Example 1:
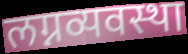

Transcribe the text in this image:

लग्नव्यवस्था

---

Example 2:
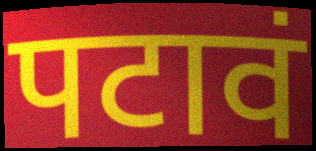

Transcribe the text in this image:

पटावं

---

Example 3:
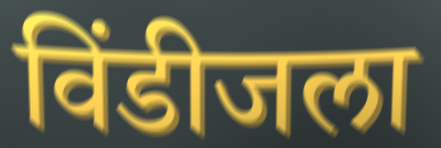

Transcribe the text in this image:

विंडीजला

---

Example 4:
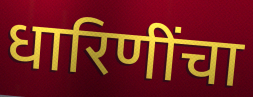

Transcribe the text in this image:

धारिणींचा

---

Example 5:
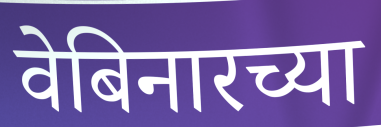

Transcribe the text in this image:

वेबिनारच्या